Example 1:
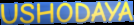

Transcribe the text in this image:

USHODAYA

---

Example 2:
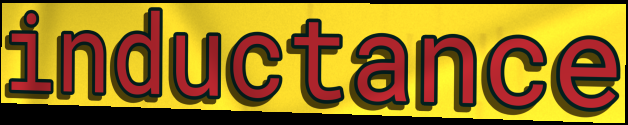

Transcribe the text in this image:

inductance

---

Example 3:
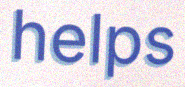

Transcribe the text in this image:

helps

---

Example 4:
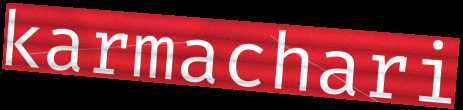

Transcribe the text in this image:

karmachari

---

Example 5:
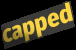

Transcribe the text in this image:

capped